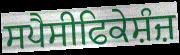
ਸਪੈਸੀਫਿਕੇਸ਼ੰਜ਼